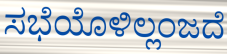
ಸಭೆಯೊಳಿಲ್ಲಂಜದೆ